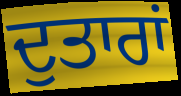
ਦੁਤਾਰਾਂ